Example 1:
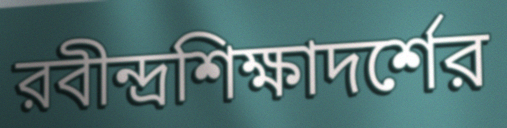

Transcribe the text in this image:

রবীন্দ্রশিক্ষাদর্শের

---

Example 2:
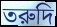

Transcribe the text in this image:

তরুদি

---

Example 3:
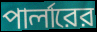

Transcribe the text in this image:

পার্লারের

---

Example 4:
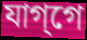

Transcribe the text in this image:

যাগ্‌গে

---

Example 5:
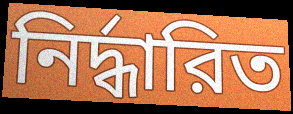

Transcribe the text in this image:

নির্দ্ধারিত